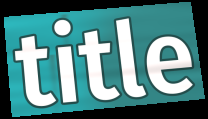
title